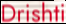
Drishti